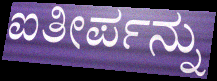
ಐತೀರ್ಪನ್ನು